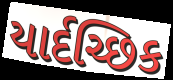
યાર્દચ્છિક